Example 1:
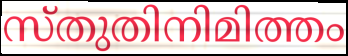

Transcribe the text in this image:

സ്തുതിനിമിത്തം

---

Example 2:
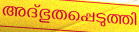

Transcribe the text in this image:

അദ്ഭുതപ്പെടുത്തി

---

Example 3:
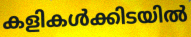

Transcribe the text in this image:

കളികൾക്കിടയിൽ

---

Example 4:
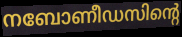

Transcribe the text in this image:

നബോണീഡസിന്റെ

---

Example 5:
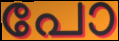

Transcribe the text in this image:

പോ